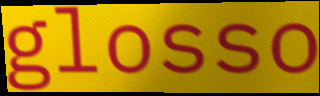
glosso